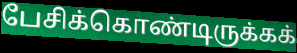
பேசிக்கொண்டிருக்கக்